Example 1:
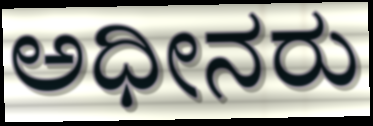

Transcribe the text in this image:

ಅಧೀನರು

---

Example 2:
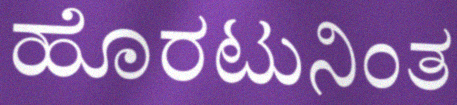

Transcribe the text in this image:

ಹೊರಟುನಿಂತ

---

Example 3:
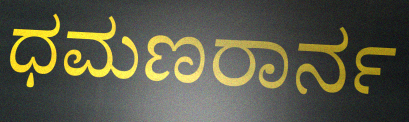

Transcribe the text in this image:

ಧಮಣರಾರ್ನ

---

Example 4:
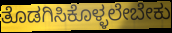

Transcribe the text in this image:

ತೊಡಗಿಸಿಕೊಳ್ಳಲೇಬೇಕು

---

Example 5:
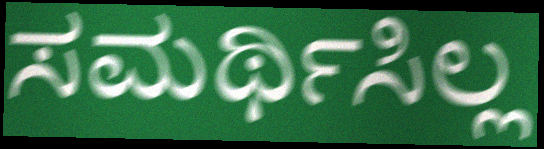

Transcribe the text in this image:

ಸಮರ್ಥಿಸಿಲ್ಲ